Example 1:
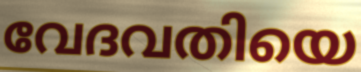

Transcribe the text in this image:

വേദവതിയെ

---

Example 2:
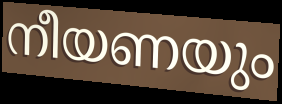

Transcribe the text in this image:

നീയണയും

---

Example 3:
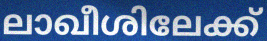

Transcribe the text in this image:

ലാഖീശിലേക്ക്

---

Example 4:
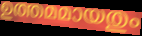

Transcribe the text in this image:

ഉത്തമമായതും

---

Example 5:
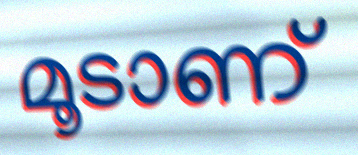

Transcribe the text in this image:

മൂടാണ്